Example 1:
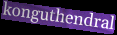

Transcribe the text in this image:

konguthendral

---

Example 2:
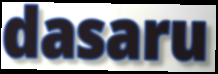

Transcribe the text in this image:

dasaru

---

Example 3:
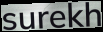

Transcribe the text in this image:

surekh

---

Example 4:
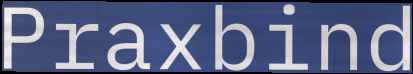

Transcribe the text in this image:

Praxbind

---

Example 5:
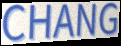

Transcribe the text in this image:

CHANG